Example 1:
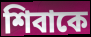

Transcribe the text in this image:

শিবাকে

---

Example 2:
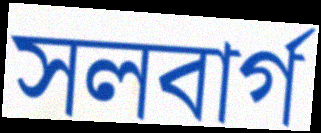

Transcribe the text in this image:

সলবার্গ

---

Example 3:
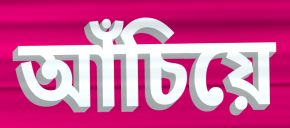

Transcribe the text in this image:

আঁচিয়ে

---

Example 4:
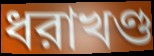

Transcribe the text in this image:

ধরাখণ্ড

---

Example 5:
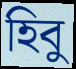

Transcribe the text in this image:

হিবু